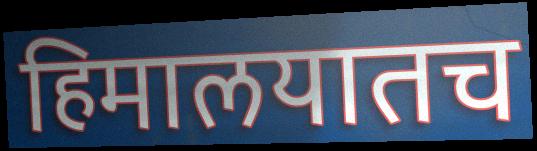
हिमालयातच